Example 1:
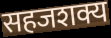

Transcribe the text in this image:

सहजशक्य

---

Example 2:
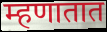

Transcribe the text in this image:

म्हणातात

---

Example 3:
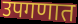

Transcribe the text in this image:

उपगणात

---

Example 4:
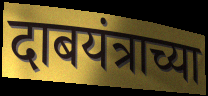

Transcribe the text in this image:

दाबयंत्राच्या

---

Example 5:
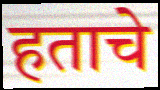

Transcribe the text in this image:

हताचे